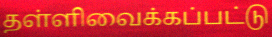
தள்ளிவைக்கப்பட்டு